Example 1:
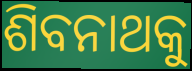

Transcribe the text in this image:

ଶିବନାଥକୁ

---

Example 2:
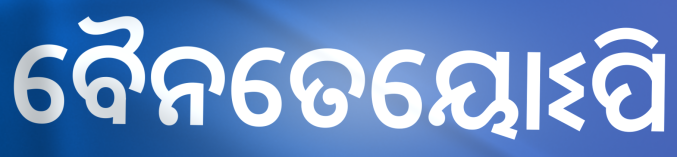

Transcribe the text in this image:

ବୈନତେୟୋଽପି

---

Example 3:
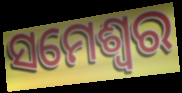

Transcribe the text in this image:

ସମେଶ୍ୱର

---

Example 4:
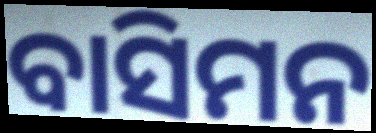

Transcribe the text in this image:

ବାସିମନ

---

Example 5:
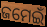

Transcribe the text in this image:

ଜମେଇଁ